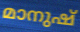
മാനുഷ്